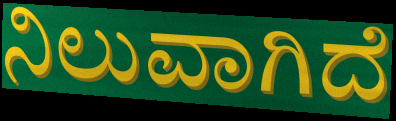
ನಿಲುವಾಗಿದೆ